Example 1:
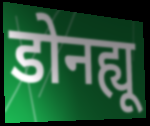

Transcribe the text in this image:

डोनह्यू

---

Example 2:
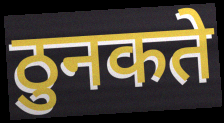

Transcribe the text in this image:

ठुनकते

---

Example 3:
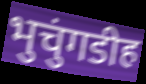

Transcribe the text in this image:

भुचुंगडीह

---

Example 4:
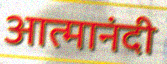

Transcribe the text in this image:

आत्मानंदी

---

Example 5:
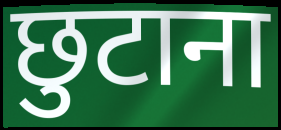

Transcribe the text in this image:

छुटाना